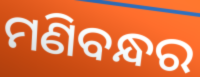
ମଣିବନ୍ଧର